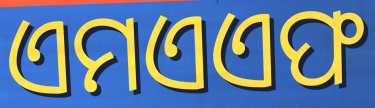
ଏମଏଏଫ